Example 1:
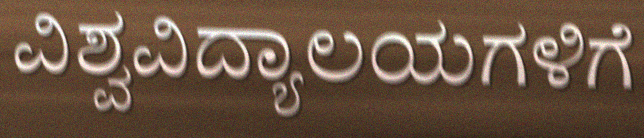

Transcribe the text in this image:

ವಿಶ್ವವಿದ್ಯಾಲಯಗಳಿಗೆ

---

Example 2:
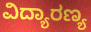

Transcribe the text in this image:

ವಿದ್ಯಾರಣ್ಯ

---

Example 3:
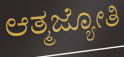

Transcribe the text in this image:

ಆತ್ಮಜ್ಯೋತಿ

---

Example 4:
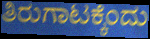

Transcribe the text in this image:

ತಿರುಗಾಟಕ್ಕೆಂದು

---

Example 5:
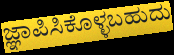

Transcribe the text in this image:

ಜ್ಞಾಪಿಸಿಕೊಳ್ಳಬಹುದು